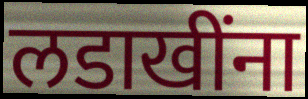
लडाखींना